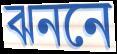
ঝননে